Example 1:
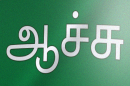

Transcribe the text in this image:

ஆச்சு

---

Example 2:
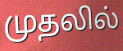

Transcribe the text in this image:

முதலில்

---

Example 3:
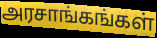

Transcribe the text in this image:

அரசாங்கங்கள்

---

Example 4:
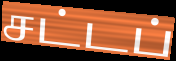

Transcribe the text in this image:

சட்டப்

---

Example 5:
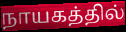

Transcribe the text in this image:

நாயகத்தில்